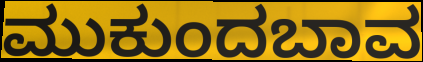
ಮುಕುಂದಬಾವ